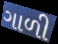
ગાળી